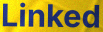
Linked